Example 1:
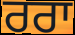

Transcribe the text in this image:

ਰਰਾ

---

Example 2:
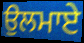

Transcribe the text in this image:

ਉਲਮਾਏ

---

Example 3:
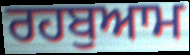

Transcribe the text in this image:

ਰਹਬੁਆਮ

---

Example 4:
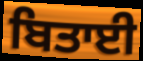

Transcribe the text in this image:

ਬਿਤਾਈ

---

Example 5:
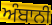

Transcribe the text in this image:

ਅੰਬਾਨੀ